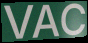
VAC